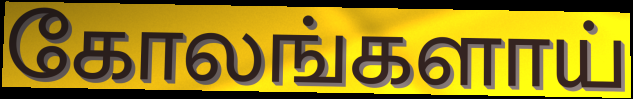
கோலங்களாய்